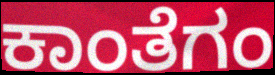
ಕಾಂತೆಗಂ